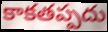
కాకతప్పదు